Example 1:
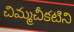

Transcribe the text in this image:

చిమ్మచీకటిని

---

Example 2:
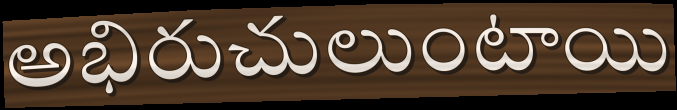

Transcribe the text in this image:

అభిరుచులుంటాయి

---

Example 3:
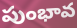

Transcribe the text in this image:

పుంభావ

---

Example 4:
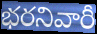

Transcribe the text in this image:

భరనివారీ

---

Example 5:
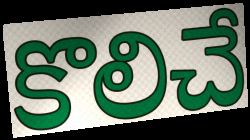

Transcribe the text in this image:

కొలిచే